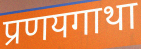
प्रणयगाथा